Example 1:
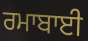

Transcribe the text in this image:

ਰਮਾਬਾਈ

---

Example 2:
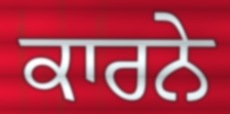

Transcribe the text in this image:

ਕਾਰਨੇ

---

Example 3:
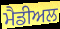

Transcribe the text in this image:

ਮੈਡੀਅਲ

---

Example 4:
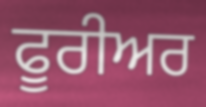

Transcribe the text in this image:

ਫੂਰੀਅਰ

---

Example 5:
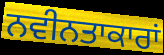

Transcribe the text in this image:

ਨਵੀਨਤਾਕਾਰਾਂ